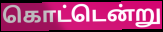
கொட்டென்று